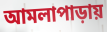
আমলাপাড়ায়